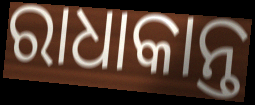
ରାଧାକାନ୍ତ